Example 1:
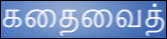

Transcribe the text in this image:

கதைவைத்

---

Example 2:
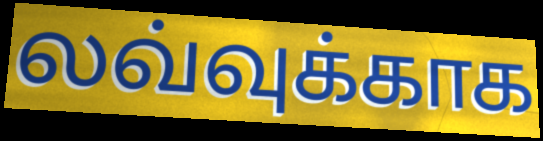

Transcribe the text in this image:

லவ்வுக்காக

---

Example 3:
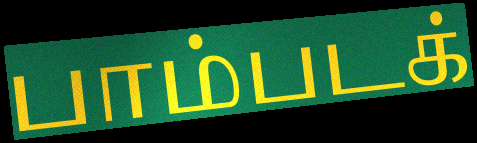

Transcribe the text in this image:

பாம்படக்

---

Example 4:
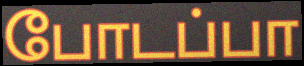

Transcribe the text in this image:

போடப்பா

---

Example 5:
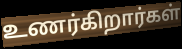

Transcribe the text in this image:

உணர்கிறார்கள்